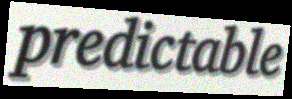
predictable